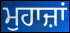
ਮੁਹਾਜ਼ਾਂ